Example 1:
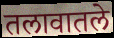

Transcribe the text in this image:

तलावातले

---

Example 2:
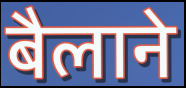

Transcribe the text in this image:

बैलाने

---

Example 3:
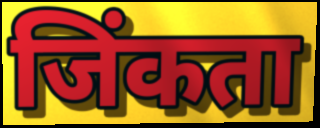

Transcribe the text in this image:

जिंकता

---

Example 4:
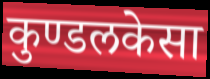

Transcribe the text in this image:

कुण्डलकेसा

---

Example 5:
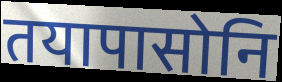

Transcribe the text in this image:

तयापासोनि